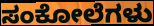
ಸಂಕೋಲೆಗಳು